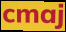
cmaj